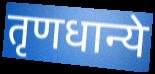
तृणधान्ये